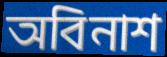
অবিনাশ